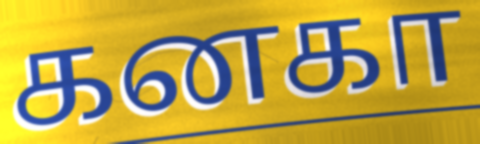
கனகா